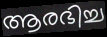
ആരഭിച്ച